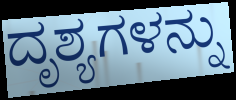
ದೃಶ್ಯಗಳನ್ನು